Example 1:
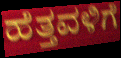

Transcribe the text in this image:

ಹೆತ್ತವಳಿಗೆ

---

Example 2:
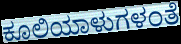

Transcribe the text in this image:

ಕೂಲಿಯಾಳುಗಳಂತೆ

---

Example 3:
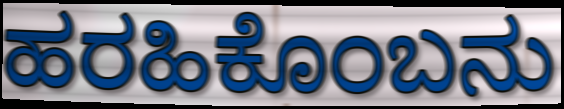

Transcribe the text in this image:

ಹರಹಿಕೊಂಬನು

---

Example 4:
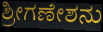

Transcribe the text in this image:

ಶ್ರೀಗಣೇಶನು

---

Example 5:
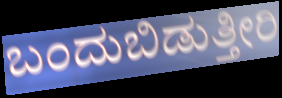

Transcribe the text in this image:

ಬಂದುಬಿಡುತ್ತೀರಿ